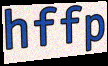
hffp